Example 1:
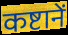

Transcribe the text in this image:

कष्टानें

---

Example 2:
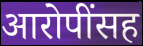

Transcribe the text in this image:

आरोपींसह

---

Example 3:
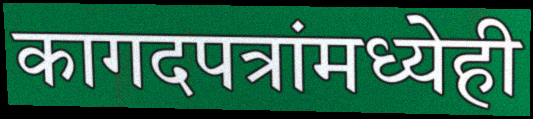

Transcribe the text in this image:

कागदपत्रांमध्येही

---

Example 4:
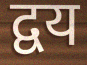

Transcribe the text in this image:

द्वय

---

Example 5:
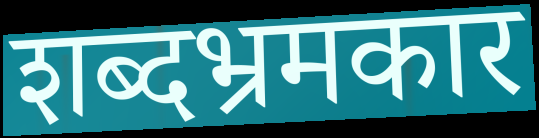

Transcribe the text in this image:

शब्दभ्रमकार